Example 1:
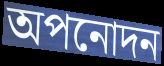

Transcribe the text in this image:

অপনোদন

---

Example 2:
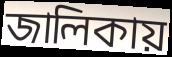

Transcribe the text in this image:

জালিকায়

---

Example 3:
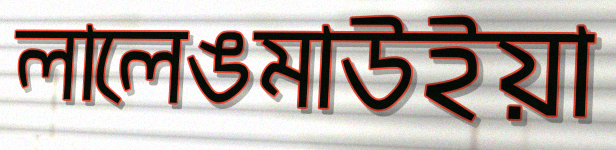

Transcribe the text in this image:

লালেঙমাউইয়া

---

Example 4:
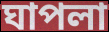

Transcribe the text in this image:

ঘাপলা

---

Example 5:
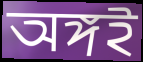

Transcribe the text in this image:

অঙ্গই